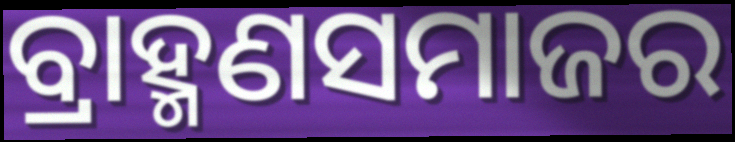
ବ୍ରାହ୍ମଣସମାଜର